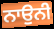
ਨਾਉਨੀ